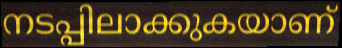
നടപ്പിലാക്കുകയാണ്